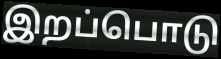
இறப்பொடு